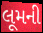
લૂમની